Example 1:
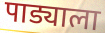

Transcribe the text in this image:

पाड्याला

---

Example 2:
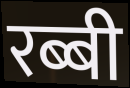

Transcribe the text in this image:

रब्बी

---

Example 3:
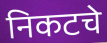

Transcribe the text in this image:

निकटचे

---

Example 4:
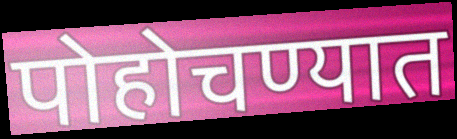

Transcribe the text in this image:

पोहोचण्यात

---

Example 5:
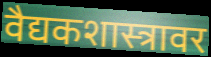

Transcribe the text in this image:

वैद्यकशास्त्रावर